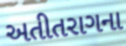
અતીતરાગના